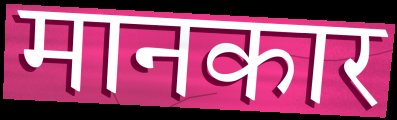
मानकार